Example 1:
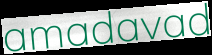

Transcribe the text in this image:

amadavad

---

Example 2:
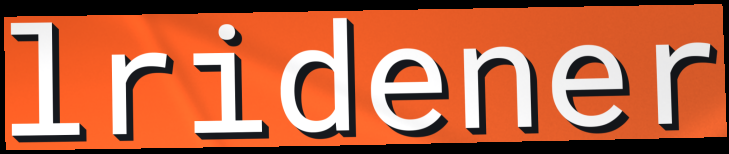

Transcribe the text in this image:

lridener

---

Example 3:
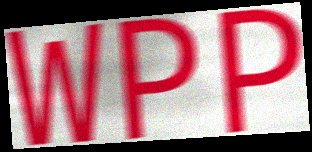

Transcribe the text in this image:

WPP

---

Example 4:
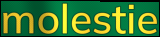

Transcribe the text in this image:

molestie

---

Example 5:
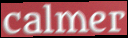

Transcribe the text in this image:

calmer